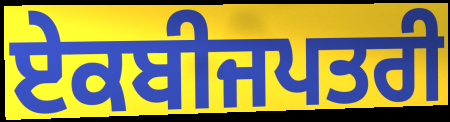
ਏਕਬੀਜਪਤਰੀ